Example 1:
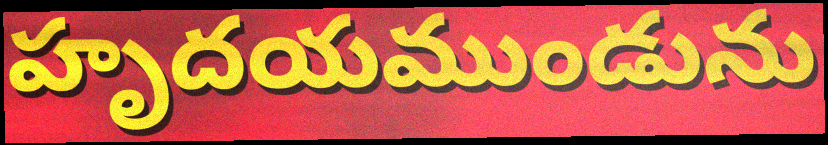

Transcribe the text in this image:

హృదయముండును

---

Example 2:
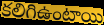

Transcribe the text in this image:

కలిగిఉంటాయి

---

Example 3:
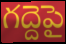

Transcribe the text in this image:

గద్దెపై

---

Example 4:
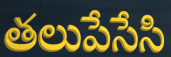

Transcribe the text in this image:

తలుపేసేసి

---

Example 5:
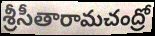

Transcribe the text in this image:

శ్రీసీతారామచంద్రో